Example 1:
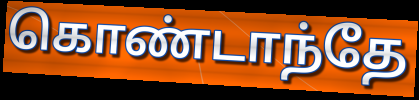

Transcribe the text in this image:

கொண்டாந்தே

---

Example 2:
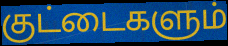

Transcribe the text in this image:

குட்டைகளும்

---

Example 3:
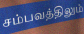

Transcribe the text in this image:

சம்பவத்திலும்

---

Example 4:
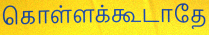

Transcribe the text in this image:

கொள்ளக்கூடாதே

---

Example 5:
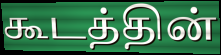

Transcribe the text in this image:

கூடத்தின்